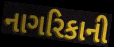
નાગરિકાની